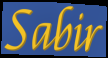
Sabir